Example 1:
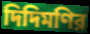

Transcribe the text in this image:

দিদিমণির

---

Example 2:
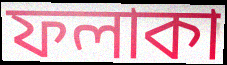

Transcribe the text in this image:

ফলাকা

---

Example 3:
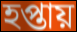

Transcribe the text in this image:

হপ্তায়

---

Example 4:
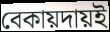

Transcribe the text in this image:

বেকায়দায়ই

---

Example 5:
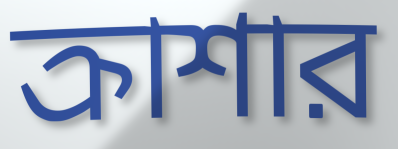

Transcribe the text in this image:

ক্রাশার